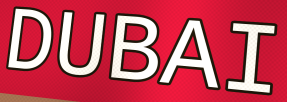
DUBAI